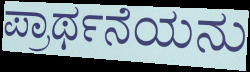
ಪ್ರಾರ್ಥನೆಯನು